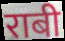
राबी